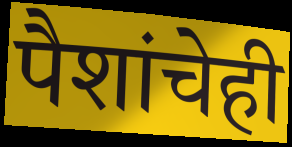
पैशांचेही